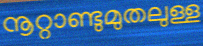
നൂറ്റാണ്ടുമുതലുള്ള